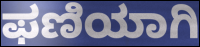
ಫಣಿಯಾಗಿ